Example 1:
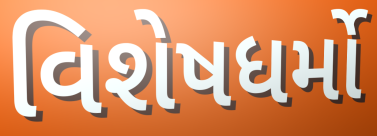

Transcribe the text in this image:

વિશેષધર્મો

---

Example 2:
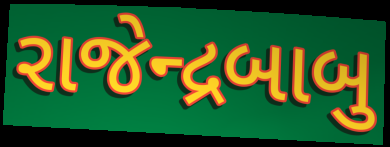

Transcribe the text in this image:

રાજેન્દ્રબાબુ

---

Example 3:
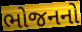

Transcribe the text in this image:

ભોજનનો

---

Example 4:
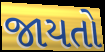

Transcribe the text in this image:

જાયતો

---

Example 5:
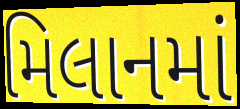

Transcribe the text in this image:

મિલાનમાં